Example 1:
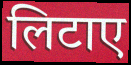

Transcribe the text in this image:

लिटाए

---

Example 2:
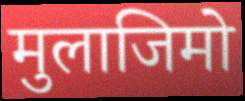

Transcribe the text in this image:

मुलाजिमो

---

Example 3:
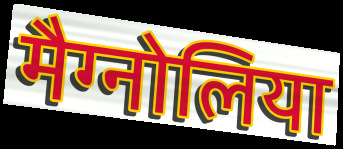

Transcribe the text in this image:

मैग्नोलिया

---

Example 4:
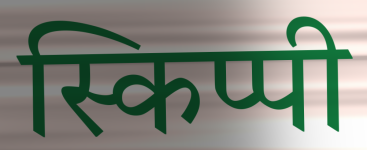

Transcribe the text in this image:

स्किप्पी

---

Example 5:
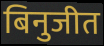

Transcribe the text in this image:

बिनुजीत